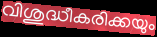
വിശുദ്ധീകരിക്കയും